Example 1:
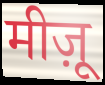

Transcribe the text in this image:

मीज़ू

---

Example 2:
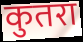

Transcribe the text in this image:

कुतरा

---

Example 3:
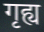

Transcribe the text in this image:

गृह्य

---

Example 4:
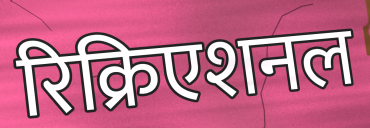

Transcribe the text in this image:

रिक्रिएशनल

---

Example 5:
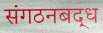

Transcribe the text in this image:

संगठनबद्ध